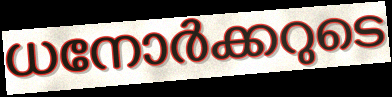
ധനോർക്കറുടെ